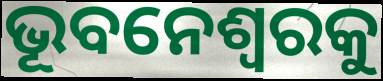
ଭୂବନେଶ୍ୱରକୁ